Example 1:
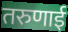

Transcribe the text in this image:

तरुणाई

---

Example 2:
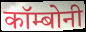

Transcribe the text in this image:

कॉम्बोनी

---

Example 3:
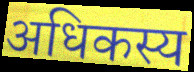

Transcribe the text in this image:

अधिकस्य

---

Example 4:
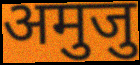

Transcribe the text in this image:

अमुजु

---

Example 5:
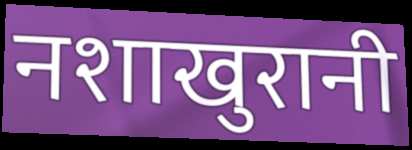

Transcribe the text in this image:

नशाखुरानी